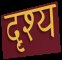
दृश्य